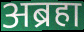
अब्रहा